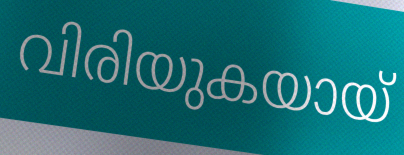
വിരിയുകയായ്